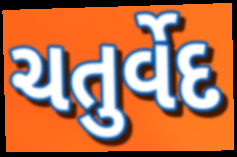
ચતુર્વેદ